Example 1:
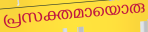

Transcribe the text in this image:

പ്രസക്തമായൊരു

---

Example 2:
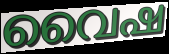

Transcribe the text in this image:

വൈഷ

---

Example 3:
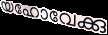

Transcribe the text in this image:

യഹോവേക്കു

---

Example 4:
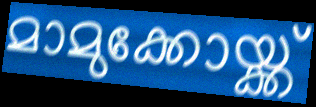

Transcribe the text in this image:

മാമുക്കോയ്ക്ക്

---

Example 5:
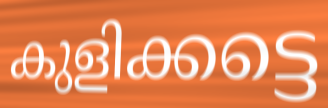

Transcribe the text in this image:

കുളിക്കട്ടെ